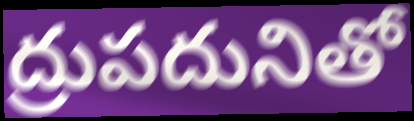
ద్రుపదునితో